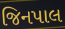
જિનપાલ